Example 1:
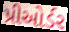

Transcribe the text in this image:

પ્રીઓર્ડર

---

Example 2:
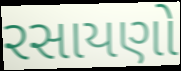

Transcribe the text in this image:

રસાયણો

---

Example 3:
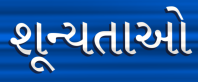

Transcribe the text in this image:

શૂન્યતાઓ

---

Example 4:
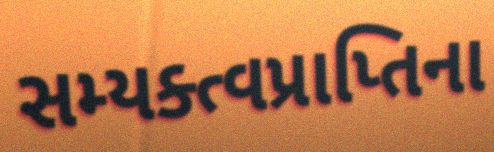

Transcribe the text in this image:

સમ્યક્ત્વપ્રાપ્તિના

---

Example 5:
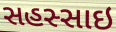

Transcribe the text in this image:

સહસ્સાઇ